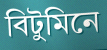
বিটুমিনে